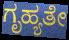
ಗೃಹ್ಯತೇ